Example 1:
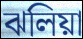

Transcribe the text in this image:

ঝলিয়া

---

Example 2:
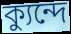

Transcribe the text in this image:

ক্যুন্দে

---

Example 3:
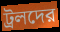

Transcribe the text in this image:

ট্রলদের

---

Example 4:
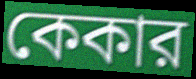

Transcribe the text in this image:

কেকার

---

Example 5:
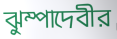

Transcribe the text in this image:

ঝুম্পাদেবীর